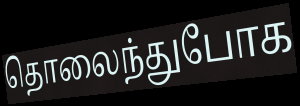
தொலைந்துபோக